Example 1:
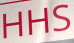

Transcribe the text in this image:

HHS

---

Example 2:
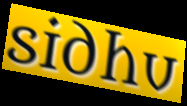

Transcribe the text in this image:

sidhu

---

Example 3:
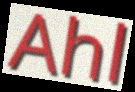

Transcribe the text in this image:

Ahl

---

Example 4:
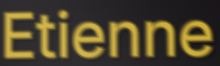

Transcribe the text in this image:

Etienne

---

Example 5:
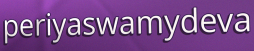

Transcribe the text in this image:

periyaswamydeva